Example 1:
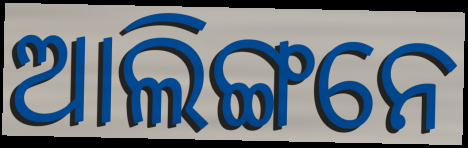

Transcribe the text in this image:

ଆଲିଙ୍ଗନେ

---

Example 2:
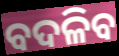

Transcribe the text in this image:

ବଦଳିବ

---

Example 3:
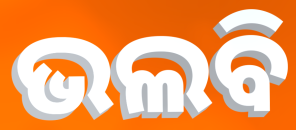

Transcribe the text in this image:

ଭଲବି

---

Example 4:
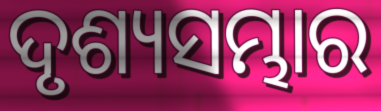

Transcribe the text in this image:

ଦୃଶ୍ୟସମ୍ଭାର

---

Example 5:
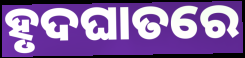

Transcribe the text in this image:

ହୃଦଘାତରେ